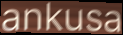
ankusa